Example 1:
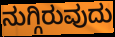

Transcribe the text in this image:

ನುಗ್ಗಿರುವುದು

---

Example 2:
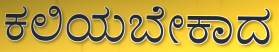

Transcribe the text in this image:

ಕಲಿಯಬೇಕಾದ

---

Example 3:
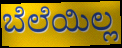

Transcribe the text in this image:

ಬೆಲೆಯಿಲ್ಲ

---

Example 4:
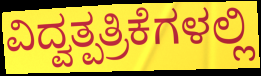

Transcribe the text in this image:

ವಿದ್ವತ್ಪತ್ರಿಕೆಗಳಲ್ಲಿ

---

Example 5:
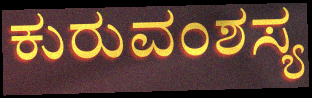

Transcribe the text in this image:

ಕುರುವಂಶಸ್ಯ